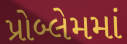
પ્રોબ્લેમમાં